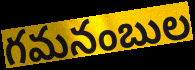
గమనంబుల